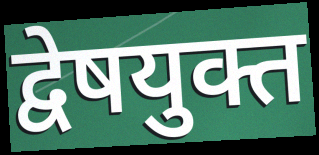
द्वेषयुक्त